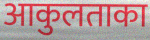
आकुलताका